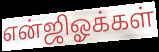
என்ஜிஓக்கள்